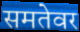
समतेवर